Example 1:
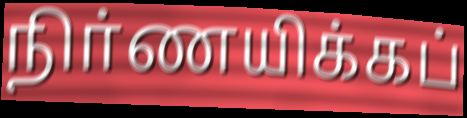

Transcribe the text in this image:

நிர்ணயிக்கப்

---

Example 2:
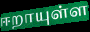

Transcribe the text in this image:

ஈறாயுள்ள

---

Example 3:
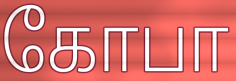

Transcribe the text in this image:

கோபா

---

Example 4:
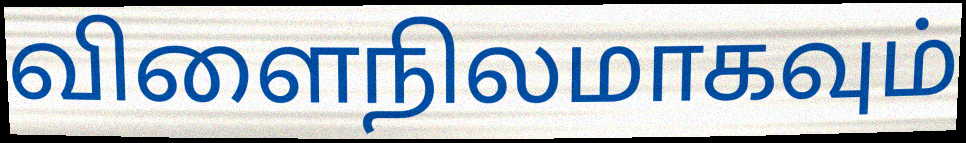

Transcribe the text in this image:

விளைநிலமாகவும்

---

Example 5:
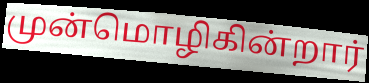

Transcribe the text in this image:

முன்மொழிகின்றார்